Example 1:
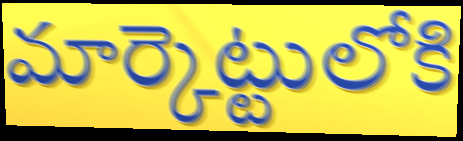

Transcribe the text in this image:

మార్కెట్టులోకి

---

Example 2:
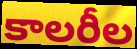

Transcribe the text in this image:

కాలరీల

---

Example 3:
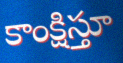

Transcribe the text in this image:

కాంక్షిస్తూ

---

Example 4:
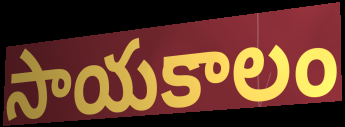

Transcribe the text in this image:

సాయకాలం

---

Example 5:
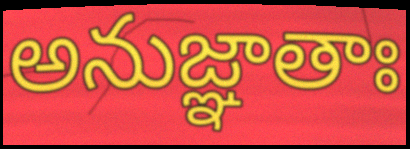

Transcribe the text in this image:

అనుజ్ఞాతాః